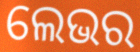
ଲେଭର